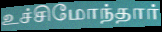
உச்சிமோந்தார்